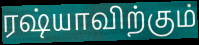
ரஷ்யாவிற்கும்